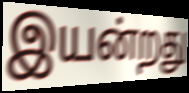
இயன்றது